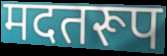
मदतरूप